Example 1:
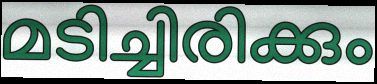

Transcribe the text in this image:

മടിച്ചിരിക്കും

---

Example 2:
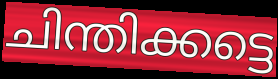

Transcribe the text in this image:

ചിന്തിക്കട്ടെ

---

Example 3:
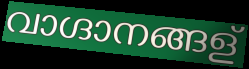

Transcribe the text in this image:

വാഗ്ദാനങ്ങള്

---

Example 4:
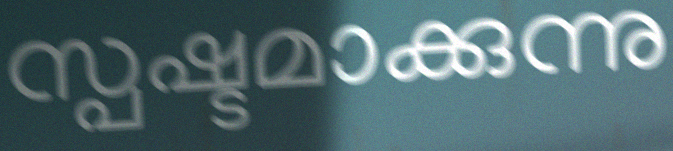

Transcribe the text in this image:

സ്പഷ്ടമാക്കുന്നു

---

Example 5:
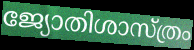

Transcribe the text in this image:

ജ്യോതിശാസ്ത്രം